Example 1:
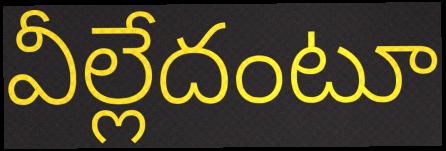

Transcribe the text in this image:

వీల్లేదంటూ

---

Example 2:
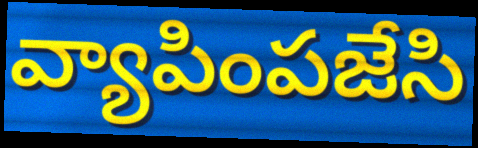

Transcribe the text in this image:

వ్యాపింపజేసి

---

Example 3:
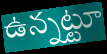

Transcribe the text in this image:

ఉన్నట్టూ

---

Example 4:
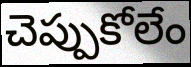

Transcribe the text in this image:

చెప్పుకోలేం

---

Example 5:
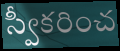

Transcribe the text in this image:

స్వీకరించ